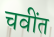
चवींत